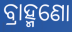
ବ୍ରାହ୍ମଣୋ